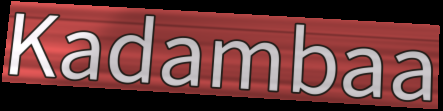
Kadambaa